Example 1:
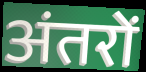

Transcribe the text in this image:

अंतरों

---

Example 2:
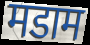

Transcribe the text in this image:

मडाम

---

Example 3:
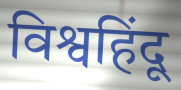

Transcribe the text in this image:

विश्वहिंदू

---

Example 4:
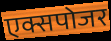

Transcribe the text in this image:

एक्सपोजर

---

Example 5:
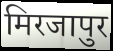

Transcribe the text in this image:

मिरजापुर